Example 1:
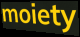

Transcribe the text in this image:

moiety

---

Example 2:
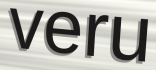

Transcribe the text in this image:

veru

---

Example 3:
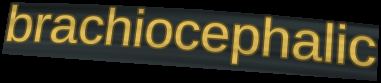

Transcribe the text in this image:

brachiocephalic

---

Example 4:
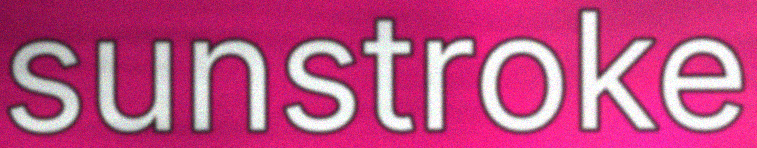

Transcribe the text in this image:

sunstroke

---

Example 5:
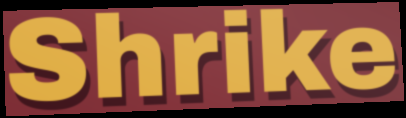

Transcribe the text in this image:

Shrike